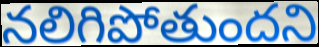
నలిగిపోతుందని